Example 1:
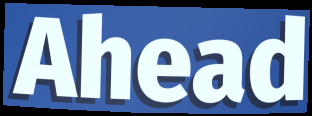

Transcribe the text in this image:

Ahead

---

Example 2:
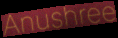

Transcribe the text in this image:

Anushree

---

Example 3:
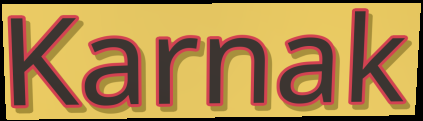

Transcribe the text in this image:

Karnak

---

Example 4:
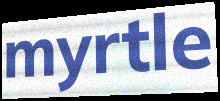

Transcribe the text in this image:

myrtle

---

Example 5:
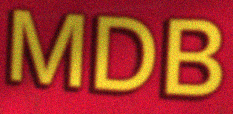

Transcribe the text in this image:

MDB